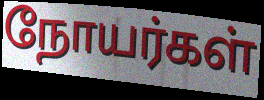
நோயர்கள்